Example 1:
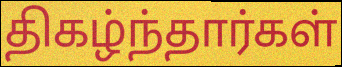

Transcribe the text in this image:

திகழ்ந்தார்கள்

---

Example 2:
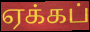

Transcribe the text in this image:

ஏக்கப்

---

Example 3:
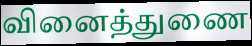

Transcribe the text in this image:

வினைத்துணை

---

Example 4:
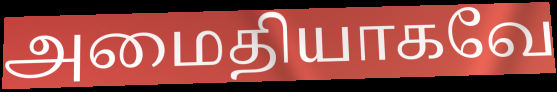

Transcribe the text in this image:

அமைதியாகவே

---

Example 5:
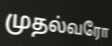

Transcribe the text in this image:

முதல்வரோ